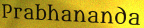
Prabhananda